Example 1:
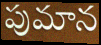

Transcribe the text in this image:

పుమాన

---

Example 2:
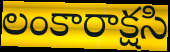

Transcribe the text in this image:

లంకారాక్షసి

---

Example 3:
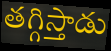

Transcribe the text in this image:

తగ్గిస్తాడు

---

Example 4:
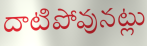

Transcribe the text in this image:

దాటిపోవునట్లు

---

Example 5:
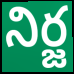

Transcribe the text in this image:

నిర్జ